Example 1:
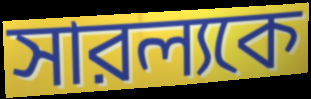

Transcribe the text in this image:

সারল্যকে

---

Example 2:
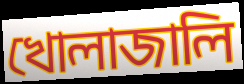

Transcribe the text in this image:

খোলাজালি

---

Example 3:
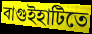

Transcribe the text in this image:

বাগুইহাটিতে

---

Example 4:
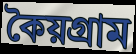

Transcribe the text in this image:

কৈয়গ্রাম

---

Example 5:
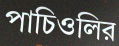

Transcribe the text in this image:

পাচিওলির